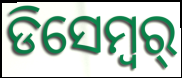
ଡିସେମ୍ବର୍